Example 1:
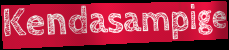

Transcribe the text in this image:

Kendasampige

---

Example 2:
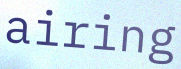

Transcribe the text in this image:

airing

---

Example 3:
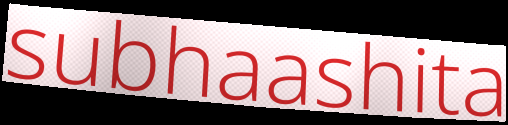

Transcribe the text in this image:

subhaashita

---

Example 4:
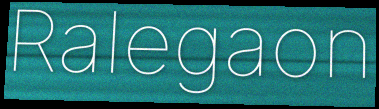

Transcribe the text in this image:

Ralegaon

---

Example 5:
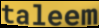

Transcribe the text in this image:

taleem